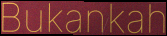
Bukankah